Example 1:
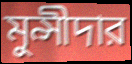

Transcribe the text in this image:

মুন্সীদার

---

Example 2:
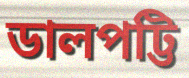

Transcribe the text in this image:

ডালপট্টি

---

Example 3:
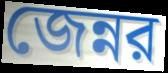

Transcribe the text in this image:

জেন্নর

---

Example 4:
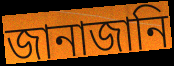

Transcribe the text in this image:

জানাজানি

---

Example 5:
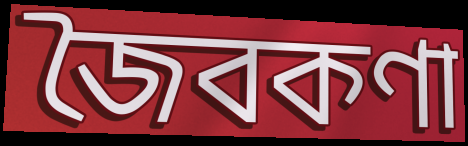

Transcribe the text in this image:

জৈবকণা